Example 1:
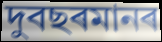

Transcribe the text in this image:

দুবছৰমানৰ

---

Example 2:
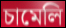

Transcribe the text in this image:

চামেলি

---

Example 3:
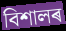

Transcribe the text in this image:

বিশালৰ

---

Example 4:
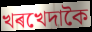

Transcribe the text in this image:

খৰখেদাকৈ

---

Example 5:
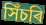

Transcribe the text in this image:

সিঁচৰি